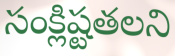
సంక్లిష్టతలని